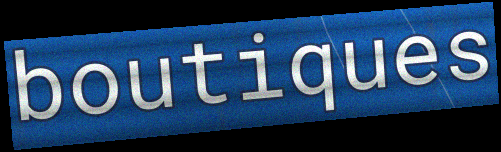
boutiques